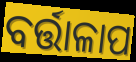
ବର୍ତ୍ତାଳାପ